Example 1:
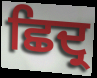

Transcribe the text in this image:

ਛਿਦ੍ਰ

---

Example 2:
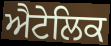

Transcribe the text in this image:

ਐਟੇਲਿਕ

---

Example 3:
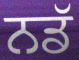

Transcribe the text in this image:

ਨਡੱ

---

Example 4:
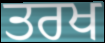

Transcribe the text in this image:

ਤਰਖ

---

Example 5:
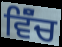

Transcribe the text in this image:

ਵਿੱੰਚ